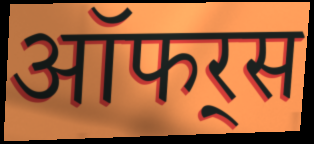
ऑफर्स